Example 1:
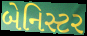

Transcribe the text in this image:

બેનિસ્ટર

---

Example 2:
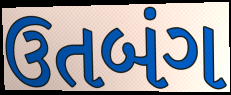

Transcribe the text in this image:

ઉતબંગ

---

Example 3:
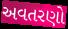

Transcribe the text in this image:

અવતરણો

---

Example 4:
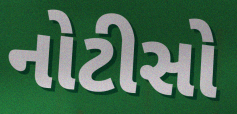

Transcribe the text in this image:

નોટીસો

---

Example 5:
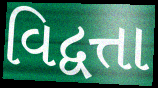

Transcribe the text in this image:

વિદ્વત્તા